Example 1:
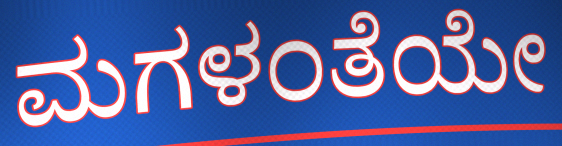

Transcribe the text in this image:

ಮಗಳಂತೆಯೇ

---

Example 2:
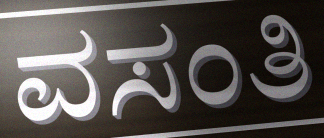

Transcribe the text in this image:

ವಸಂತಿ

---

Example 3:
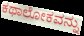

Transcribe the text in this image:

ಕಥಾಲೋಕವನ್ನು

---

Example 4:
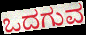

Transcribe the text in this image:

ಒದಗುವ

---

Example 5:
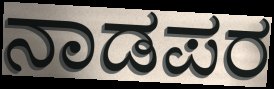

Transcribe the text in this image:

ನಾಡಪರ